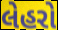
લેહરો